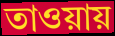
তাওয়ায়